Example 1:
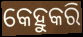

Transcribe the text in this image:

କେହୁକରି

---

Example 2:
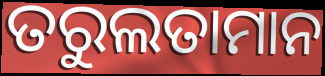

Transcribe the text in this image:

ତରୁଲତାମାନ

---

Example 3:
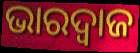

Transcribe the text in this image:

ଭାରଦ୍ୱାଜ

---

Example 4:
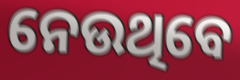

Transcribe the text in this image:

ନେଉଥିବେ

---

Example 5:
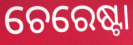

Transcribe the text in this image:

ଚେରେଷ୍ଟା